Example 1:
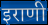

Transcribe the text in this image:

इराणी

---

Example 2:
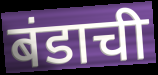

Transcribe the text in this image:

बंडाची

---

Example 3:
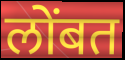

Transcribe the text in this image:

लोंबत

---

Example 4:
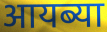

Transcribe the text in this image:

आयब्या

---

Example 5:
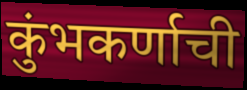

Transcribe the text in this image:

कुंभकर्णाची